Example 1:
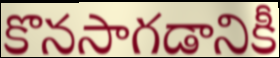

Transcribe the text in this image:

కొనసాగడానికీ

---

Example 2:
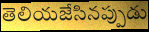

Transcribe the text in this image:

తెలియజేసినప్పుడు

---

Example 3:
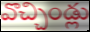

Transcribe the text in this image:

వొచ్చిండ్లు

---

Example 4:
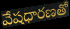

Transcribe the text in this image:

వేషధారణతో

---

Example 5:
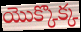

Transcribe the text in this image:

యొక్కొక్క